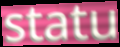
statu